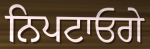
ਨਿਪਟਾਓਗੇ